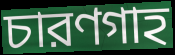
চারণগাহ